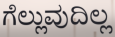
ಗೆಲ್ಲುವುದಿಲ್ಲ